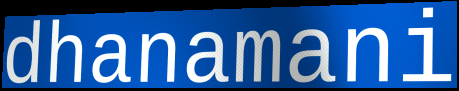
dhanamani